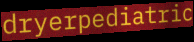
dryerpediatric